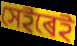
সেইৰেই